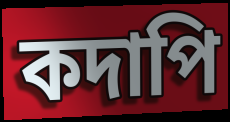
কদাপি